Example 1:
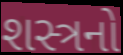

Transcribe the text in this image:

શસ્ત્રનો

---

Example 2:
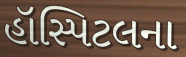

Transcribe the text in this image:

હૉસ્પિટલના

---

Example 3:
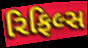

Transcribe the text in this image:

રિફિલ્સ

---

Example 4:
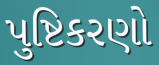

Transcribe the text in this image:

પુષ્ટિકરણો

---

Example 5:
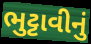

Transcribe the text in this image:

ભુટ્ટાવીનું